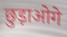
छुड़ाओगे